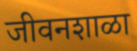
जीवनशाळा